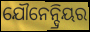
ଯୌନେନ୍ଦ୍ରିୟର